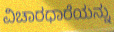
ವಿಚಾರಧಾರೆಯನ್ನು